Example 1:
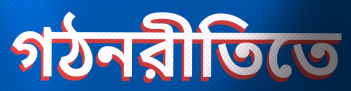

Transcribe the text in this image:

গঠনরীতিতে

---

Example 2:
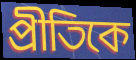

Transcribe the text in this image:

প্রীতিকে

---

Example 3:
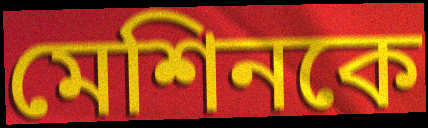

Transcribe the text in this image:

মেশিনকে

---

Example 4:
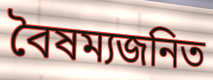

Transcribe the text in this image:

বৈষম্যজনিত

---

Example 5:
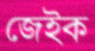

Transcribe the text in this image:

জেইক